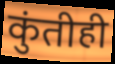
कुंतीही